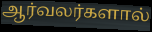
ஆர்வலர்களால்